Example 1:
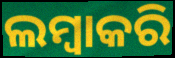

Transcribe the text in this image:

ଲମ୍ବାକରି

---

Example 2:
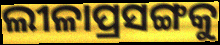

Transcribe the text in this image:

ଲୀଳାପ୍ରସଙ୍ଗକୁ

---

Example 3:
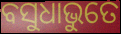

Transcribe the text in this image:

ବସୁଧାଭୁତେ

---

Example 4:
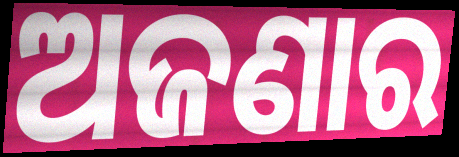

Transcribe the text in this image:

ଅଜଣାର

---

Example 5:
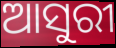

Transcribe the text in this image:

ଆସୁରୀ